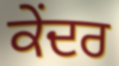
ਕੇੰਦਰ